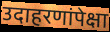
उदाहरणांपेक्षा